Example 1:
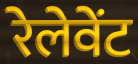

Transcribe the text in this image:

रेलेवेंट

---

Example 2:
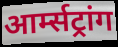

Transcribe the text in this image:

आर्म्सट्रांग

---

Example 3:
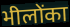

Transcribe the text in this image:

भीलोंका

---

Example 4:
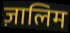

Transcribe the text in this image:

ज़ालिम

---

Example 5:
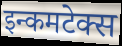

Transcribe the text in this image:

इन्कमटेक्स